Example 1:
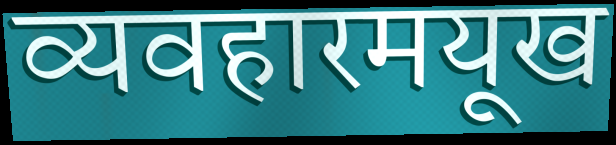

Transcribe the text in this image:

व्यवहारमयूख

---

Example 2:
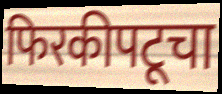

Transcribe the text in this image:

फिरकीपटूचा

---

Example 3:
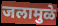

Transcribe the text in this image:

जलामुळे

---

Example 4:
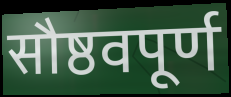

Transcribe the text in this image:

सौष्ठवपूर्ण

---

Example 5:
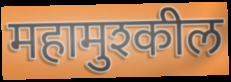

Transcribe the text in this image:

महामुश्कील